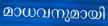
മാധവനുമായി